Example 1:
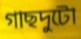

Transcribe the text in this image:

গাছদুটো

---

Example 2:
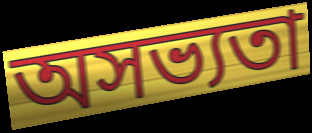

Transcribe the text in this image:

অসভ্যতা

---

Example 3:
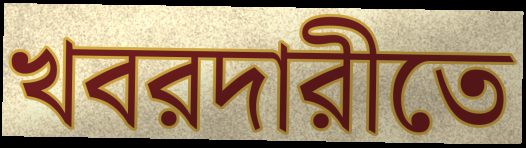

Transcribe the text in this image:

খবরদারীতে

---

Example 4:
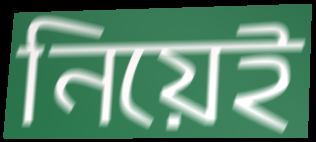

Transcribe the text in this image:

নিয়েই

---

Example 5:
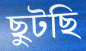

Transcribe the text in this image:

ছুটছি